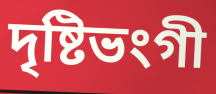
দৃষ্টিভংগী